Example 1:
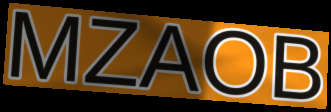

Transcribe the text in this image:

MZAOB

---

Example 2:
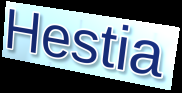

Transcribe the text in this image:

Hestia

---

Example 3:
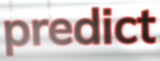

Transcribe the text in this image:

predict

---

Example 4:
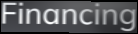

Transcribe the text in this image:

Financing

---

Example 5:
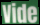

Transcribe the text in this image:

Vide